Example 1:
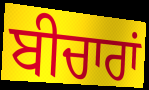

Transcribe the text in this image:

ਬੀਚਾਰਾਂ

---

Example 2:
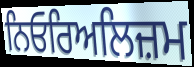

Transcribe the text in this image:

ਨਿਓਰਿਅਲਿਜ਼ਮ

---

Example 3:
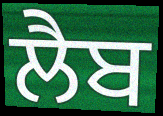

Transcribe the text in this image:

ਲੈਬ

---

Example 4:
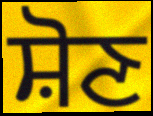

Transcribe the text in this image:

ਸ਼ੋਣ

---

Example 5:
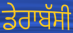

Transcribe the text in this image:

ਡੇਰਾਬੱਸੀ